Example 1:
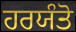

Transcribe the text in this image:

ਹਰਯੰਤੋ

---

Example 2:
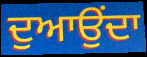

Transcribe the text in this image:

ਦੁਆਉਂਦਾ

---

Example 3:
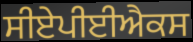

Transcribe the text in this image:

ਸੀਏਪੀਈਐਕਸ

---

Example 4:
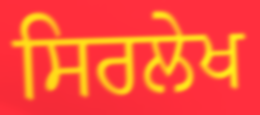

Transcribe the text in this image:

ਸਿਰਲੇਖ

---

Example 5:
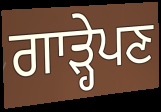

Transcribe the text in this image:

ਗਾੜ੍ਹੇਪਣ